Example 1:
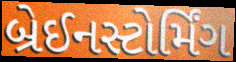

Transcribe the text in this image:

બ્રેઈનસ્ટોર્મિંગ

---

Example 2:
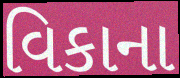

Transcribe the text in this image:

વિકાના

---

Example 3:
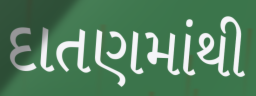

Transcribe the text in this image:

દાતણમાંથી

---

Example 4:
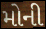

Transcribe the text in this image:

મોની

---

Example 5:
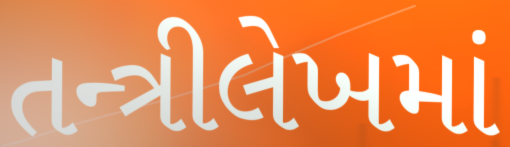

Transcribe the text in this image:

તન્ત્રીલેખમાં